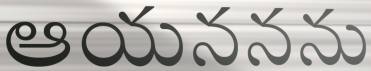
ఆయననను